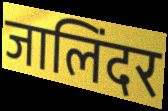
जालिंदर